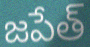
జపేత్